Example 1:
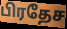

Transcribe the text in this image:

பிரதேச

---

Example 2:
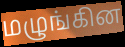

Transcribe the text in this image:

மழுங்கின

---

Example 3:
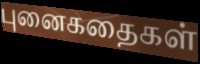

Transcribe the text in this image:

புனைகதைகள்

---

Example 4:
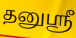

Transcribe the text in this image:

தனுஸ்ரீ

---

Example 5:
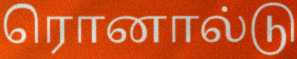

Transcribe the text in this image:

ரொனால்டு